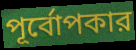
পূর্বোপকার